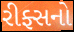
રીફ્સનો